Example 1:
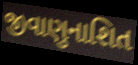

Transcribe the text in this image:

જીવાણુનાશિત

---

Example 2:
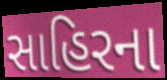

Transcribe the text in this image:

સાહિરના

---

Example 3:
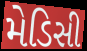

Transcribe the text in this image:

મેડિસી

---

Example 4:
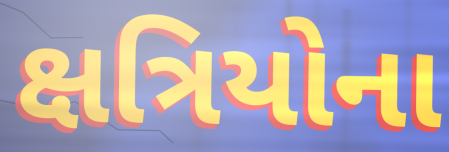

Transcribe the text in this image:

ક્ષત્રિયોના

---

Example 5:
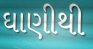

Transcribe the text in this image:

ઘાણીથી